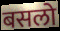
बसलो